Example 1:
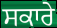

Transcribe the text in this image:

ਸਕਾਰੇ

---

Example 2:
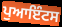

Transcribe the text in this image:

ਪੁਆਇੰਟਸ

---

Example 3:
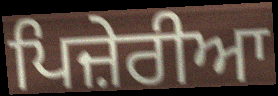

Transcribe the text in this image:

ਪਿਜ਼ੇਰੀਆ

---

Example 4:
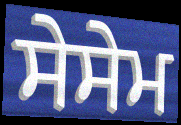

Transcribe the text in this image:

ਸੇਸੇਮ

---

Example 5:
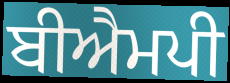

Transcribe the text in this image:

ਬੀਐਮਪੀ